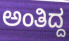
ಅಂತಿದ್ದ